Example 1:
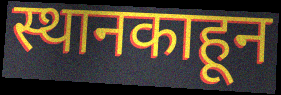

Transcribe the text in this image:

स्थानकाहून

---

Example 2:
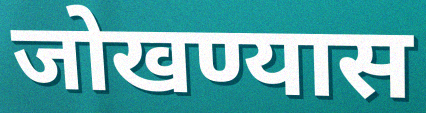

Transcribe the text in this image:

जोखण्यास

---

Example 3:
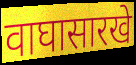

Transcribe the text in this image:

वाघासारखे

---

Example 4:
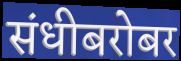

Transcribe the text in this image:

संधीबरोबर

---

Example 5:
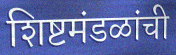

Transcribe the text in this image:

शिष्टमंडळांची